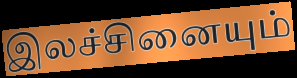
இலச்சினையும்